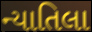
ન્યાતિલા